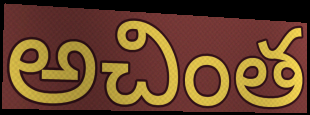
అచింత